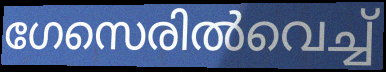
ഗേസെരിൽവെച്ച്